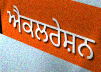
ਐਕਲਰੇਸ਼ਨ